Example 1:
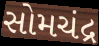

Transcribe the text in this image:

સોમચંદ્ર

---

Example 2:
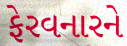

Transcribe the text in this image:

ફેરવનારને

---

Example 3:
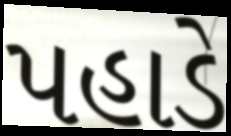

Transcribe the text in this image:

પહાડે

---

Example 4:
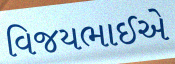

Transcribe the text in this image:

વિજયભાઈએ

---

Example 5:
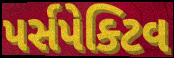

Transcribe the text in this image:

પર્સપેક્ટિવ